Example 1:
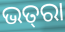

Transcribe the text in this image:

ଭତ୍‌ରା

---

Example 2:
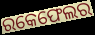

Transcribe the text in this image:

ରକେଫେଲର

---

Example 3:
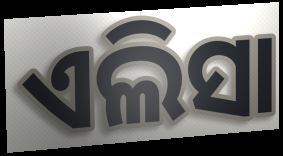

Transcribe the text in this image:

ଏଲିସା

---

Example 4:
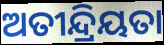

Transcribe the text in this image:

ଅତୀନ୍ଦ୍ରିୟତା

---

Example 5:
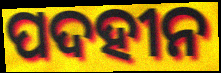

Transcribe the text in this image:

ପଦହୀନ